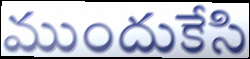
ముందుకేసి